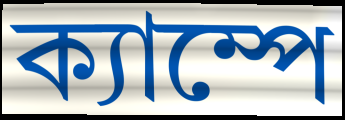
ক্যাম্পে